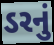
ડરનું